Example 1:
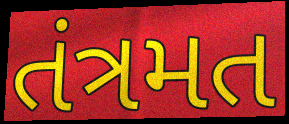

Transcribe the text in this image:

તંત્રમત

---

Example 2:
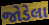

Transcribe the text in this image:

જોડેલા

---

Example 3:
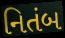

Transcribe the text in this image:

નિતંબ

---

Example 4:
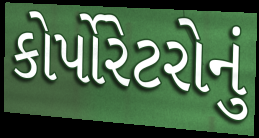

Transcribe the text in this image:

કોર્પોરેટરોનું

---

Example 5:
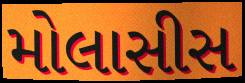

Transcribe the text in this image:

મોલાસીસ